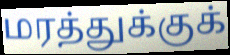
மரத்துக்குக்